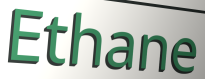
Ethane